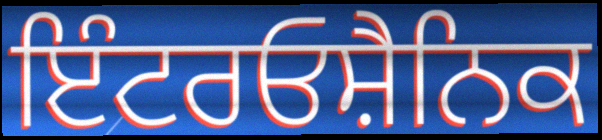
ਇੰਟਰਓਸ਼ੈਨਿਕ